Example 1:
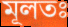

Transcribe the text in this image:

মূলতঃ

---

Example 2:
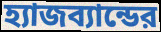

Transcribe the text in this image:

হ্যাজব্যান্ডের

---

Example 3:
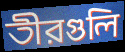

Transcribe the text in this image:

তীরগুলি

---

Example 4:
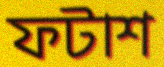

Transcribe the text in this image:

ফটাশ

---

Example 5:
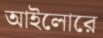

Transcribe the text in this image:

আইলোরে